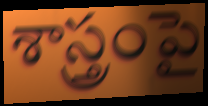
శాస్త్రంపై